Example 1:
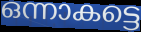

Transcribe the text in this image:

ഒന്നാകട്ടെ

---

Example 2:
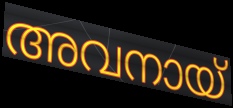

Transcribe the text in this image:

അവനായ്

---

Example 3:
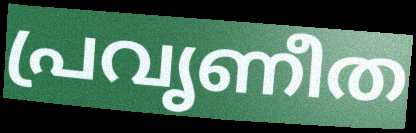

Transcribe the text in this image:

പ്രവൃണീത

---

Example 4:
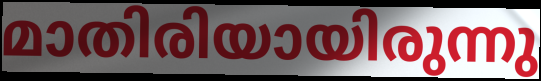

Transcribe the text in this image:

മാതിരിയായിരുന്നു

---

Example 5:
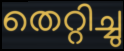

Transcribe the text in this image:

തെറ്റിച്ചു